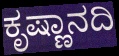
ಕೃಷ್ಣಾನದಿ